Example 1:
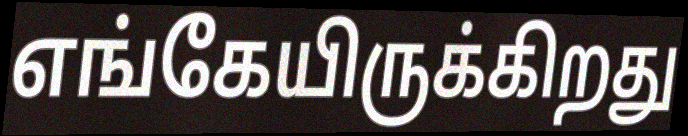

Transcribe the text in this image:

எங்கேயிருக்கிறது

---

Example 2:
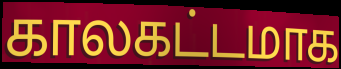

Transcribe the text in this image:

காலகட்டமாக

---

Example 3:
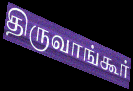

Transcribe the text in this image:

திருவாங்கூர்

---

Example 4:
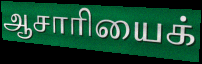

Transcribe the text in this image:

ஆசாரியைக்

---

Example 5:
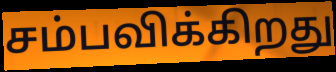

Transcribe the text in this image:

சம்பவிக்கிறது